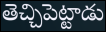
తెచ్చిపెట్టాడు